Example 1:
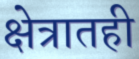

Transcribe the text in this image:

क्षेत्रातही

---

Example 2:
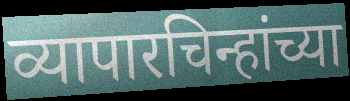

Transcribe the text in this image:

व्यापारचिन्हांच्या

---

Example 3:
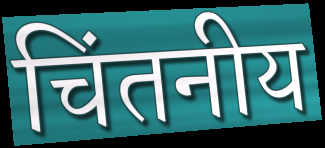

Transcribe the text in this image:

चिंतनीय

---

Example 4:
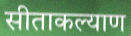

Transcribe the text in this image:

सीताकल्याण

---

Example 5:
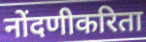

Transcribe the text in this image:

नोंदणीकरिता